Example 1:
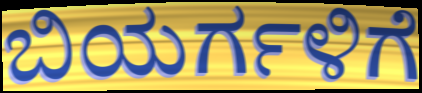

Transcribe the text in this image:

ಬಿಯರ್ಗಳಿಗೆ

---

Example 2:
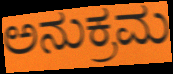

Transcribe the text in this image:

ಅನುಕ್ರಮ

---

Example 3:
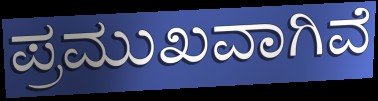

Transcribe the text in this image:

ಪ್ರಮುಖವಾಗಿವೆ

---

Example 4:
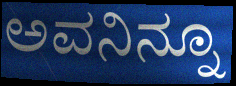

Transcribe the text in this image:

ಅವನಿನ್ನೂ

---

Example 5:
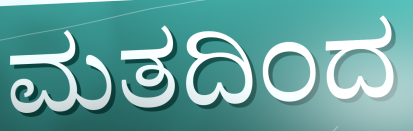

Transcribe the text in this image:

ಮತದಿಂದ